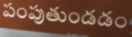
పంపుతుండడం